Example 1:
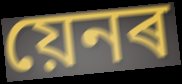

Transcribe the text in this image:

য়েনৰ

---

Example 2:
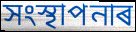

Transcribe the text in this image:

সংস্থাপনাৰ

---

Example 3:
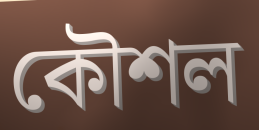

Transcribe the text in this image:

কৌশল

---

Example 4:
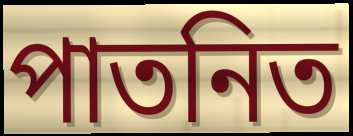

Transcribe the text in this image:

পাতনিত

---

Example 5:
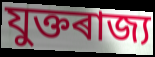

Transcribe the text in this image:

যুক্তৰাজ্য